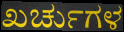
ಖರ್ಚುಗಳ